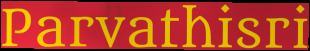
Parvathisri